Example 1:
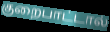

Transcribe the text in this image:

குறைபாட்டால்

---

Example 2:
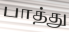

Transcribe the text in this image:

பாத்து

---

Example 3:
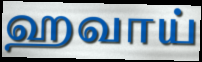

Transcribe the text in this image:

ஹவாய்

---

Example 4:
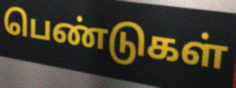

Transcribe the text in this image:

பெண்டுகள்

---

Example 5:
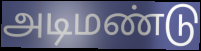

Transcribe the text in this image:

அடிமண்டு